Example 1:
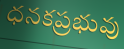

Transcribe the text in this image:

ధనకప్రభువు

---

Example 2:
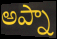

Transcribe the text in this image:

అప్నా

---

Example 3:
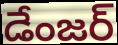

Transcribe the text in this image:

డేంజర్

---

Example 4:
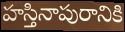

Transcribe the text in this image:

హస్తినాపురానికి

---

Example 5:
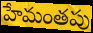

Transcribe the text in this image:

హేమంతపు